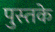
पुस्‍तके